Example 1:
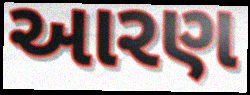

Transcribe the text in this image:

આરણ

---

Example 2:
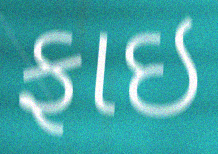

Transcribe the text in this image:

ફાઇ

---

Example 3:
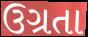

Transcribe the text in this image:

ઉગ્રતા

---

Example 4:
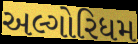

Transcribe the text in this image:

અલ્ગોરિધમ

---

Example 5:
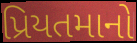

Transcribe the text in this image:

પ્રિયતમાનો